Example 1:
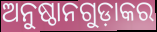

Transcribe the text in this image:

ଅନୁଷ୍ଠାନଗୁଡ଼ାକର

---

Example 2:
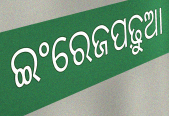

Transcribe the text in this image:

ଇଂରେଜପଢ଼ୁଆ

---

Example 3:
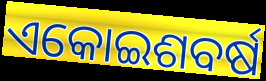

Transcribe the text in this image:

ଏକୋଇଶବର୍ଷ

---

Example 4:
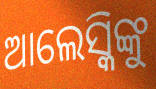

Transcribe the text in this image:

ଆଲେସ୍କିଙ୍କୁ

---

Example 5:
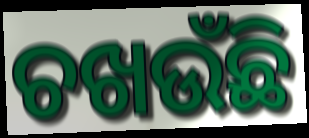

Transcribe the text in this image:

ଚଖଉଁଛି